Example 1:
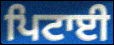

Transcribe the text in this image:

ਪਿਟਾਈ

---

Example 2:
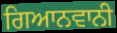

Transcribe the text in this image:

ਗਿਆਨਵਾਨੀ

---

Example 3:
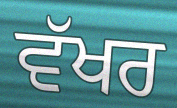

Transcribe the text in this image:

ਵੱਖਰ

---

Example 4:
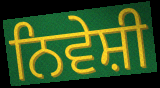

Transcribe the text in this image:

ਨਿਵੇਸ਼ੀ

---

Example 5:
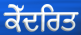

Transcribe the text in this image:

ਕੇੱਦਰਿਤ